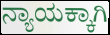
ನ್ಯಾಯಕ್ಕಾಗಿ